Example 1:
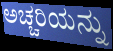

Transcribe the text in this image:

ಅಚ್ಚರಿಯನ್ನು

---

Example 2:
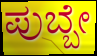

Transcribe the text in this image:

ಪುಬ್ಬೇ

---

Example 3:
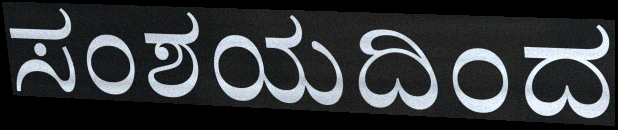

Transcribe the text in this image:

ಸಂಶಯದಿಂದ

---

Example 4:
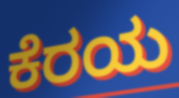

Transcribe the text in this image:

ಕೆರಯ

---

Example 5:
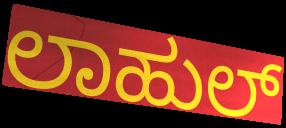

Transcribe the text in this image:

ಲಾಹುಲ್